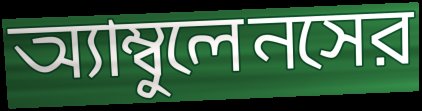
অ্যাম্বুলেনসের